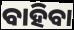
ବାହିବା